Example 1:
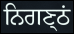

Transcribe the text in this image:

ਨਿਗਣ੍ਠਂ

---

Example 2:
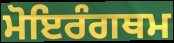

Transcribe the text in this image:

ਮੋਇਰੰਗਥਮ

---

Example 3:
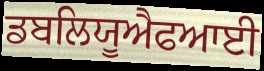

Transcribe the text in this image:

ਡਬਲਿਯੂਐਫਆਈ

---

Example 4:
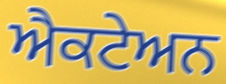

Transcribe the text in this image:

ਐਕਟੇਅਨ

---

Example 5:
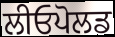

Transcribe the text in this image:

ਲੀਓਪੋਲਡ